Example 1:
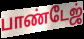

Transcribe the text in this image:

பாண்டேஜ்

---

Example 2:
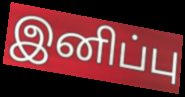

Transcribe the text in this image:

இனிப்பு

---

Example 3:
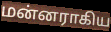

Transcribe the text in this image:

மன்னராகிய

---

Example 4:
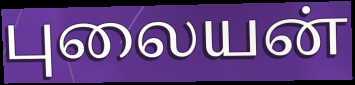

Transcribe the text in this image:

புலையன்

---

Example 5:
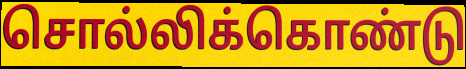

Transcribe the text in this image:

சொல்லிக்கொண்டு